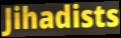
Jihadists